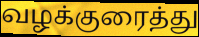
வழக்குரைத்து